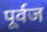
पूर्वज